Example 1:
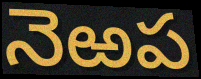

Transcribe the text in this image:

నెఱప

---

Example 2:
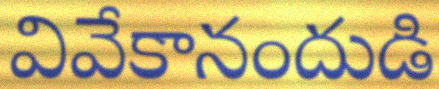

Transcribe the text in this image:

వివేకానందుడి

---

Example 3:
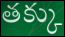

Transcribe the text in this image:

తక్కు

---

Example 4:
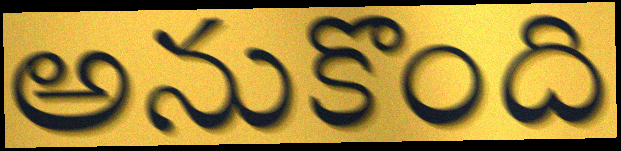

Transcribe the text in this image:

అనుకొంది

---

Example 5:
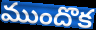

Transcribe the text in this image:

ముందొక